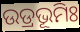
ଉଡ୍ରଭୂମିଃ